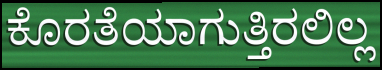
ಕೊರತೆಯಾಗುತ್ತಿರಲಿಲ್ಲ